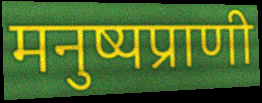
मनुष्यप्राणी